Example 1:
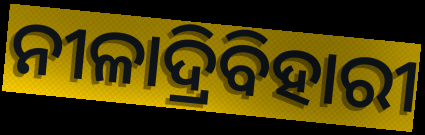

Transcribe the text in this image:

ନୀଳାଦ୍ରିବିହାରୀ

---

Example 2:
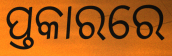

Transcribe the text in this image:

ପ୍ତକାରରେ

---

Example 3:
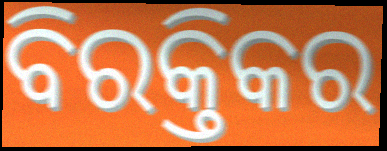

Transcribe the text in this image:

ବିରକ୍ତିକର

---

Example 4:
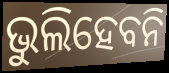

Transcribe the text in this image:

ଭୁଲିହେବନି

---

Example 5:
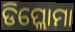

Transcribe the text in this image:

ଡିପ୍ଲୋମା